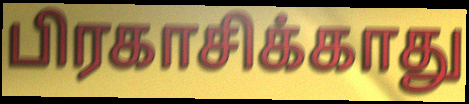
பிரகாசிக்காது